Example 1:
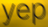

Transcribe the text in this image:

yep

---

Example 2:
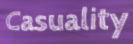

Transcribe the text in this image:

Casuality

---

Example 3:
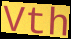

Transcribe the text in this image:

Vth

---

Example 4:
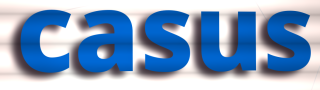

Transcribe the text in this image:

casus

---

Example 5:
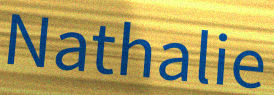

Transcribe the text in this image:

Nathalie